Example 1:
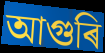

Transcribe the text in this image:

আগুৰি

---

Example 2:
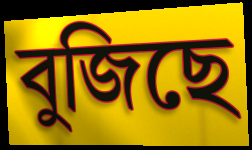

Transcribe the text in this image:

বুজিছে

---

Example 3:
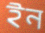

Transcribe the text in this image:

ইন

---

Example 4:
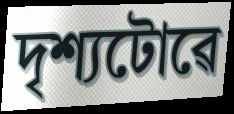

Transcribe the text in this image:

দৃশ্যটোৱে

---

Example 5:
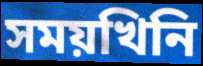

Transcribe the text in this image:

সময়খিনি